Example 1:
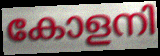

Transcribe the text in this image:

കോളനി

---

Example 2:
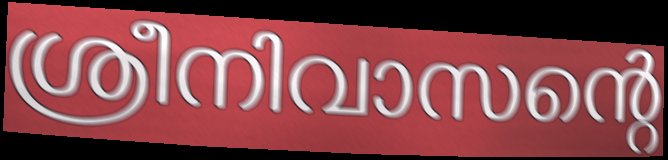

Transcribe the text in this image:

ശ്രീനിവാസന്റെ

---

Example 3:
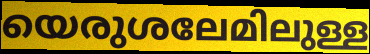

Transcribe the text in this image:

യെരുശലേമിലുള്ള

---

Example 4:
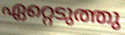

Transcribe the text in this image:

ഏറ്റെടുത്തു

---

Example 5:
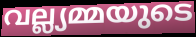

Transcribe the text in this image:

വല്ല്യമ്മയുടെ